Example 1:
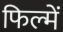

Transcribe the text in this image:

फिल्‍में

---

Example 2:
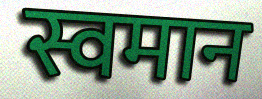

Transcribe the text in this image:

स्वमान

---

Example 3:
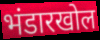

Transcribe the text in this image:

भंडारखोल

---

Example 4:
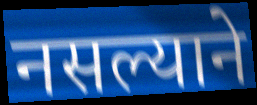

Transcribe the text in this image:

नसल्याने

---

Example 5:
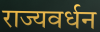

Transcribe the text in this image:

राज्‍यवर्धन